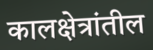
कालक्षेत्रांतील